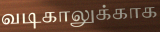
வடிகாலுக்காக